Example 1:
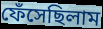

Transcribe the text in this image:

ফেঁসেছিলাম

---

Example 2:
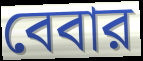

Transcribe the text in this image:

বেবার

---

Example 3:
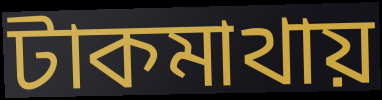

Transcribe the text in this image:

টাকমাথায়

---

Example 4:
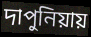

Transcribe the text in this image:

দাপুনিয়ায়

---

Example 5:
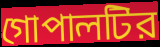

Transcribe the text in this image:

গোপালটির